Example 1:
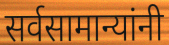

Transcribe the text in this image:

सर्वसामान्यांनी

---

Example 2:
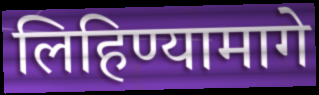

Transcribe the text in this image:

लिहिण्यामागे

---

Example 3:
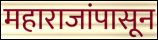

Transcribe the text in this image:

महाराजांपासून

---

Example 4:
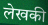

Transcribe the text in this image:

लेखकी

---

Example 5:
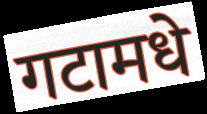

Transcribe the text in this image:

गटामधे